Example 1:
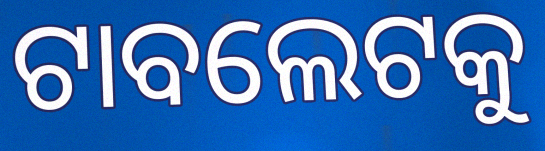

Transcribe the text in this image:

ଟାବଲେଟକୁ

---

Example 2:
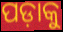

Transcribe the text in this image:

ପଡ଼ାକୁ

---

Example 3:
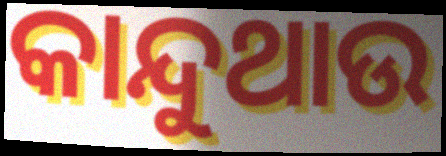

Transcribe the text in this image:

କାନ୍ଦୁଥାଉ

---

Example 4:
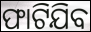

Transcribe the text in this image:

ଫାଟିଯିବ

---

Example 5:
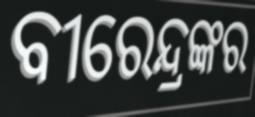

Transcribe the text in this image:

ବୀରେନ୍ଦ୍ରଙ୍କର